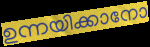
ഉന്നയിക്കാനോ